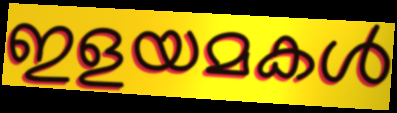
ഇളയമകൾ